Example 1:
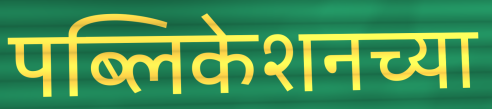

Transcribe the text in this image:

पब्लिकेशनच्या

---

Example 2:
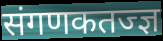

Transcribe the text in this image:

संगणकतज्ज्ञ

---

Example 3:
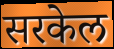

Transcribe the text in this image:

सरकेल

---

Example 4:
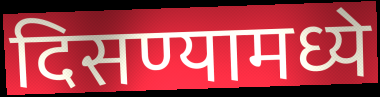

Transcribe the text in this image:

दिसण्यामध्ये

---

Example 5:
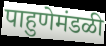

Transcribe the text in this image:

पाहुणेमंडळी